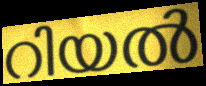
റിയൽ